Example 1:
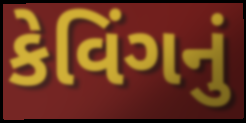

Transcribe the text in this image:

કેવિંગનું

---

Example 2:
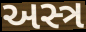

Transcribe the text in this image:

અસ્ત્ર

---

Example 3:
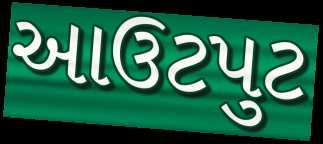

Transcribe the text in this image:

આઉટપુટ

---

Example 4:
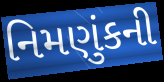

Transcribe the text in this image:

નિમણુંકની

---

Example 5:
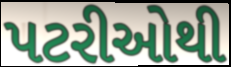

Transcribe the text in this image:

પટરીઓથી